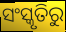
ସଂସ୍କୃତିରୁ